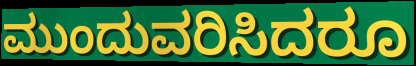
ಮುಂದುವರಿಸಿದರೂ